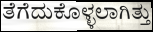
ತೆಗೆದುಕೊಳ್ಳಲಾಗಿತ್ತು